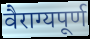
वैराग्यपूर्ण